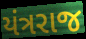
યંત્રરાજ